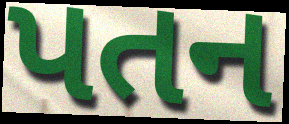
પતન